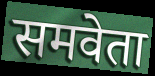
समवेता